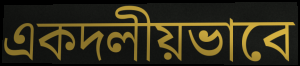
একদলীয়ভাবে